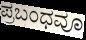
ಪ್ರಬಂಧವೂ